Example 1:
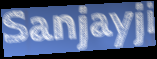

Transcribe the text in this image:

Sanjayji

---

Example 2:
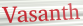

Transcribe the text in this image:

Vasanth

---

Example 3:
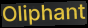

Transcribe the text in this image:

Oliphant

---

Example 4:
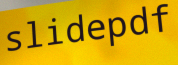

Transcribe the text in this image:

slidepdf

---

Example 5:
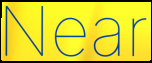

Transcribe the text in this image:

Near